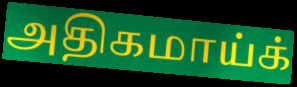
அதிகமாய்க்